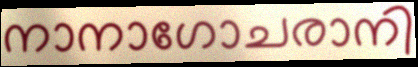
നാനാഗോചരാനി